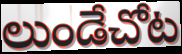
లుండేచోట